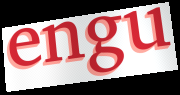
engu